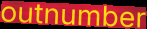
outnumber